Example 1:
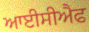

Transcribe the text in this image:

ਆਈਸੀਐਫ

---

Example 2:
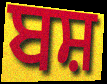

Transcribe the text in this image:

ਬਸ਼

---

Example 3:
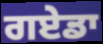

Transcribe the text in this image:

ਗਏਡਾ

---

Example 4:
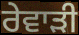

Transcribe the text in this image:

ਰੇਵਾਡ਼ੀ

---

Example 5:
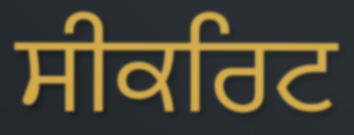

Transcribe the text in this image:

ਸੀਕਰਿਟ